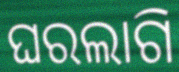
ଘରଲାଗି